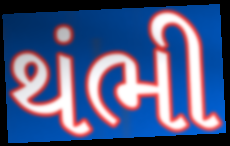
થંભી